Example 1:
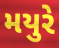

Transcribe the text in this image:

મયુરે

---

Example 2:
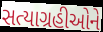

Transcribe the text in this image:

સત્યાગ્રહીઓને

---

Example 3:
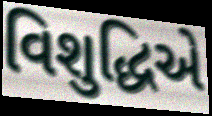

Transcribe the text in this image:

વિશુદ્ધિએ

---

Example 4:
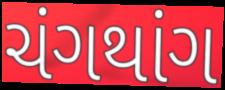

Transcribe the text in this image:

ચંગથાંગ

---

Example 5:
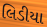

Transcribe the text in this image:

લિડીયા